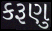
કરૂણુ